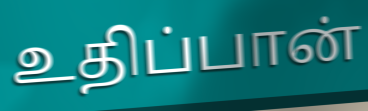
உதிப்பான்